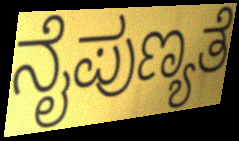
ನೈಪುಣ್ಯತೆ